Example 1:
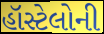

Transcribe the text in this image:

હૉસ્ટેલોની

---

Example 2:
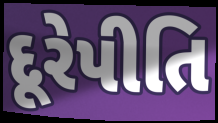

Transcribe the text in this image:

દૂરેપીતિ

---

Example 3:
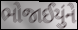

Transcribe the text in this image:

ભોજાઈયુંને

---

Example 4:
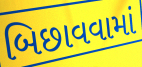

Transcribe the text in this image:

બિછાવવામાં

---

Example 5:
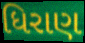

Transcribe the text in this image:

ધિરાણ